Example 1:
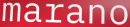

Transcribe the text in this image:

marano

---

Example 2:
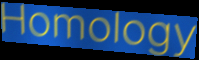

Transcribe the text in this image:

Homology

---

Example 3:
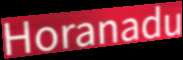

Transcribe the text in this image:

Horanadu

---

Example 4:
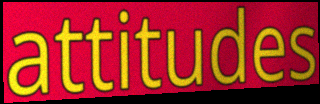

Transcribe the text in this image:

attitudes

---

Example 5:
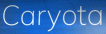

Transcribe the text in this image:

Caryota